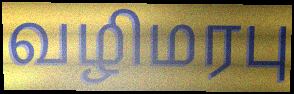
வழிமரபு